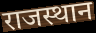
राजस्थान